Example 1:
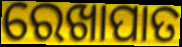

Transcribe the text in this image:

ରେଖାପାତ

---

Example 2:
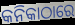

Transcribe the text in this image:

କନିକାଠାରେ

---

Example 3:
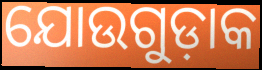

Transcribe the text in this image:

ଯୋଉଗୁଡ଼ାକ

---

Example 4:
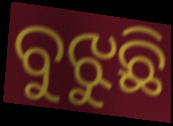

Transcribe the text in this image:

ବୁଝୁଛି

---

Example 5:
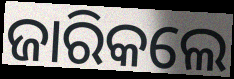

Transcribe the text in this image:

ଜାରିକଲେ